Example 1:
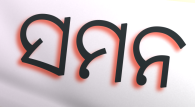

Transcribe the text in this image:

ସମନ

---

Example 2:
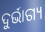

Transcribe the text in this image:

ଦୁର୍ଭାଗ୍ୟ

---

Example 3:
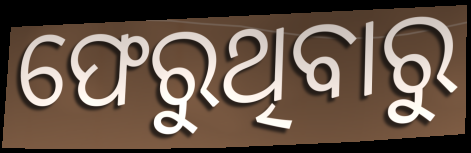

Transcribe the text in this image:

ଫେରୁଥିବାରୁ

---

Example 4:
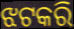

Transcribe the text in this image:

ଝଟକରି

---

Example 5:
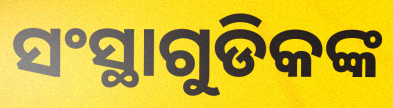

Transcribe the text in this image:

ସଂସ୍ଥାଗୁଡିକଙ୍କ